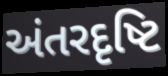
અંતરદૃષ્ટિ